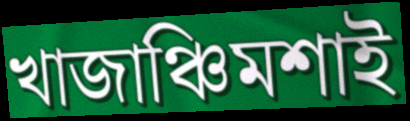
খাজাঞ্চিমশাই